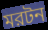
মরটন